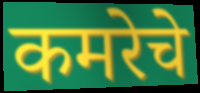
कमरेचे